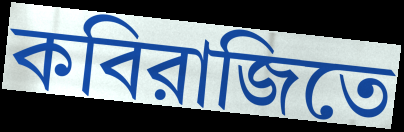
কবিরাজিতে